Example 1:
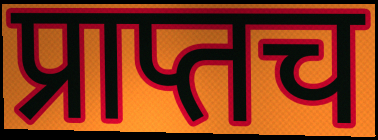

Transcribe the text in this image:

प्राप्तच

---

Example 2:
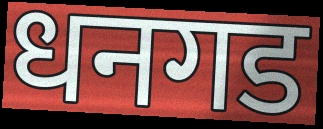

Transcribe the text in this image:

धनगड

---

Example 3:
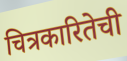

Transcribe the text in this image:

चित्रकारितेची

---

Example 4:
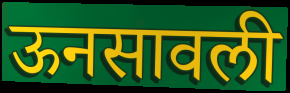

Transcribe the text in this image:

ऊनसावली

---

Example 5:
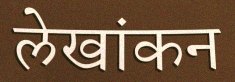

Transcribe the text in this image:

लेखांकन